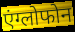
एंग्लोफोन